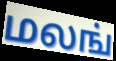
மலங்